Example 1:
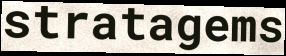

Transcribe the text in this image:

stratagems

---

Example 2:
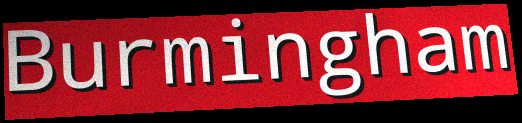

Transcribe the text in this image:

Burmingham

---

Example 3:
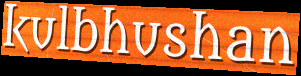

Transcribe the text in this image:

kulbhushan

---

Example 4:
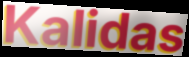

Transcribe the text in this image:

Kalidas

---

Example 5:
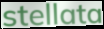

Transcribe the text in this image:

stellata